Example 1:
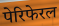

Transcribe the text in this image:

पेरिफेरल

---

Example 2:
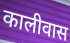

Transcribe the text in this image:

कालीवास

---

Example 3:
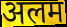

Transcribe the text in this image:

अलम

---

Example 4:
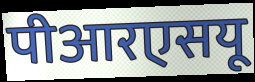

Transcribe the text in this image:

पीआरएसयू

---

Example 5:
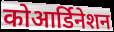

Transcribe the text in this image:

कोआर्डिनेशन